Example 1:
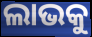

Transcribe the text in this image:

ଲାଭକୁ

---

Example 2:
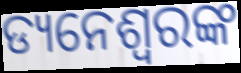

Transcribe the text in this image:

ଡ୍ୟନେଶ୍ୱରଙ୍କ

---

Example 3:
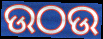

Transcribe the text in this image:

ଉଠଉ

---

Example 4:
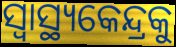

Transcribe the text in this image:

ସ୍ୱାସ୍ଥ୍ୟକେନ୍ଦ୍ରକୁ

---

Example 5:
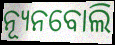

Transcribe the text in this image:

ନ୍ୟୂନବୋଲି